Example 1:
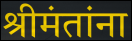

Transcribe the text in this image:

श्रीमंतांना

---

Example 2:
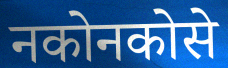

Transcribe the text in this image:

नकोनकोसे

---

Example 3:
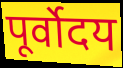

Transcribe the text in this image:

पूर्वोदय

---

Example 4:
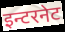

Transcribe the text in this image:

इन्टरनेट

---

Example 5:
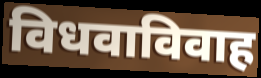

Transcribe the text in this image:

विधवाविवाह